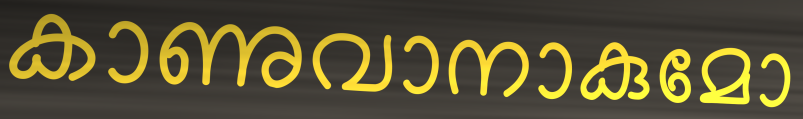
കാണുവാനാകുമോ